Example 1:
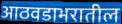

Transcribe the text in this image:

आठवडाभरातील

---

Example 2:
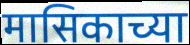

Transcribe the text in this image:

मासिकाच्या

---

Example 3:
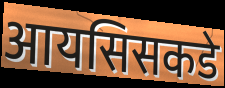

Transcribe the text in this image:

आयसिसकडे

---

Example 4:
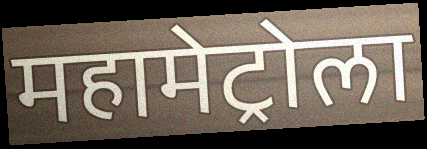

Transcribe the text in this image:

महामेट्रोला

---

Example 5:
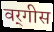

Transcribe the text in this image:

वर्गीस